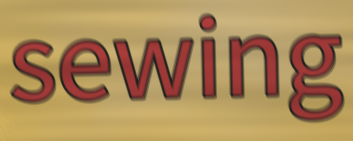
sewing